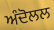
ਅੰਦੋਲਲ